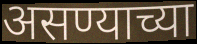
असण्याच्या